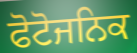
ਫੋਟੋਜਨਿਕ